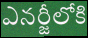
ఎనర్జీలోకి